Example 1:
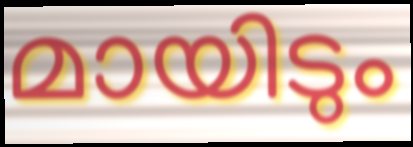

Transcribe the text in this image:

മായിടും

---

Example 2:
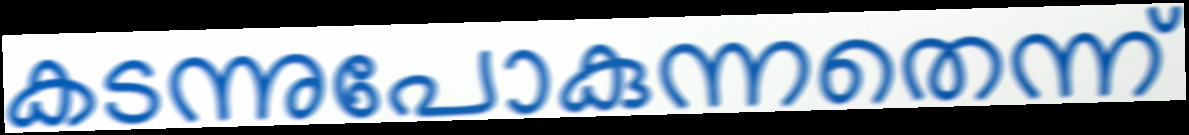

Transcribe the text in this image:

കടന്നുപോകുന്നതെന്ന്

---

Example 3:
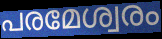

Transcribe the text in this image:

പരമേശ്വരം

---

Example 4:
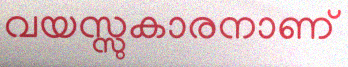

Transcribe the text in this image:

വയസ്സുകാരനാണ്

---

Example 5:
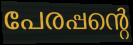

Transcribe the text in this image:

പേരപ്പന്റെ